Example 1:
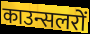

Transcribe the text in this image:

काउन्सलरों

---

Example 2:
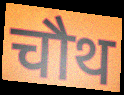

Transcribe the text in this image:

चौथ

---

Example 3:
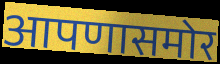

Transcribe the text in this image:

आपणासमोर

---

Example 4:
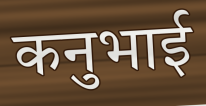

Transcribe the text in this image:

कनुभाई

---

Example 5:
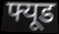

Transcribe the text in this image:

फ्यूड